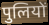
पुलियों